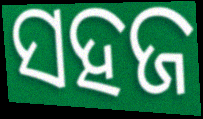
ସହଜ